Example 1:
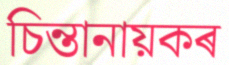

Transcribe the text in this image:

চিন্তানায়কৰ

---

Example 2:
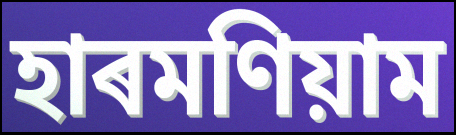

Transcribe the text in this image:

হাৰমণিয়াম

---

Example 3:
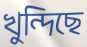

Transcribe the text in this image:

খুন্দিছে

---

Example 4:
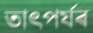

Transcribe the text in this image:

তাৎপৰ্যৰ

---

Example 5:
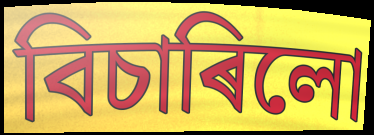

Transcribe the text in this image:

বিচাৰিলো